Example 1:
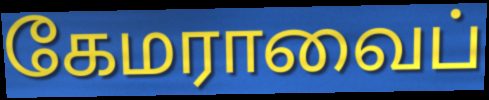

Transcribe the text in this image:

கேமராவைப்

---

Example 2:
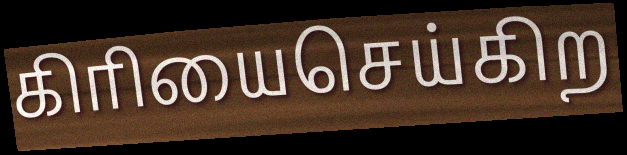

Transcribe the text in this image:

கிரியைசெய்கிற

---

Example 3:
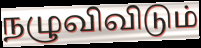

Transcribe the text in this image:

நழுவிவிடும்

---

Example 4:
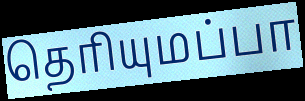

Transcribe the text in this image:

தெரியுமப்பா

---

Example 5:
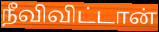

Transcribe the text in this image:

நீவிவிட்டான்